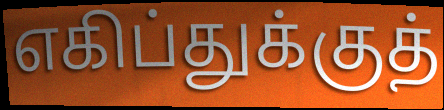
எகிப்துக்குத்